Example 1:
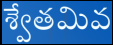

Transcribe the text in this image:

శ్వేతమివ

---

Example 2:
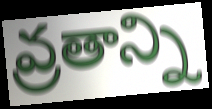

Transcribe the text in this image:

వ్రతాన్ని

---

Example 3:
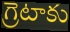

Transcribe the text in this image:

గ్రెటాకు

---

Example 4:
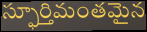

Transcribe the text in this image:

స్ఫూర్తిమంతమైన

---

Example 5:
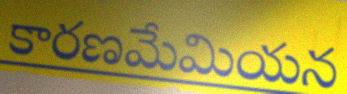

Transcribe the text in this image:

కారణమేమియన